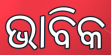
ଭାବିକ